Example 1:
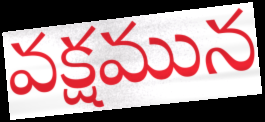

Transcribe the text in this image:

వక్షమున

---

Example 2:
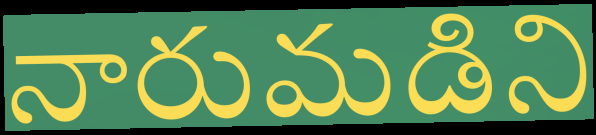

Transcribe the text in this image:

నారుమడిని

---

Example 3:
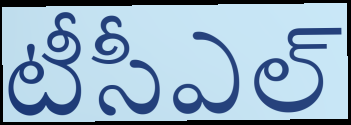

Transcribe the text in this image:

టీసీఎల్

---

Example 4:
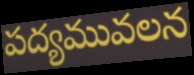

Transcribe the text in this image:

పద్యమువలన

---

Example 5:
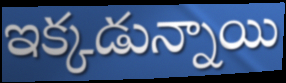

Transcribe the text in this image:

ఇక్కడున్నాయి